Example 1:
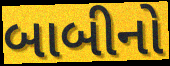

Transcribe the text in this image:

બાબીનો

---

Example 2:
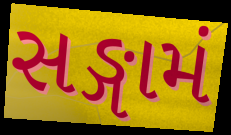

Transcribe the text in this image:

સઙ્ગામં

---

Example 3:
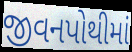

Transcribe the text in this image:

જીવનપોથીમાં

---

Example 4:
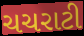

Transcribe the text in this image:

ચચરાટી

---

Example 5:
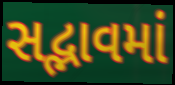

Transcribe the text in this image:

સદ્ભાવમાં